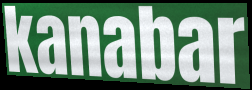
kanabar